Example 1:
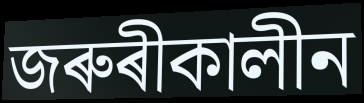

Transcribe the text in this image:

জৰুৰীকালীন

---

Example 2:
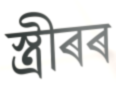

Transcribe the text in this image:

স্ত্ৰীৰৰ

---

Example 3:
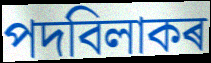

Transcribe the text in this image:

পদবিলাকৰ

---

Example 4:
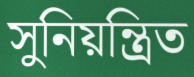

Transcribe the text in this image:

সুনিয়ন্ত্ৰিত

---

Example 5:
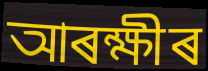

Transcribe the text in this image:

আৰক্ষীৰ